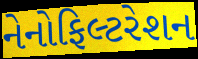
નેનોફિલ્ટરેશન